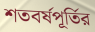
শতবর্ষপূর্তির